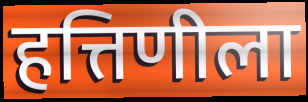
हत्तिणीला